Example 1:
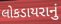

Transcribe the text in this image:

લોકડાયરાનું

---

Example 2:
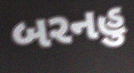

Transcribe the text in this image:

બરનહુ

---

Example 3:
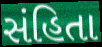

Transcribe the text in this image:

સંહિતા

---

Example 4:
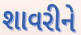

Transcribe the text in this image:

શાવરીને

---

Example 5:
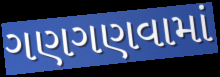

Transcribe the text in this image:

ગણગણવામાં